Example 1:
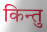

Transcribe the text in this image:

किन्‍तु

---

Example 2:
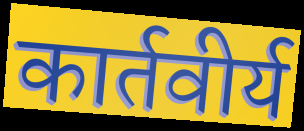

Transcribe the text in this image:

कार्तवीर्य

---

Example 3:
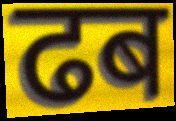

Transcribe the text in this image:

ढब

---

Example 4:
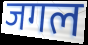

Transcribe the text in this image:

जगल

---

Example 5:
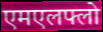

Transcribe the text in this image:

एमएलफ्लो